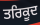
ਤਰਿਕੂਦ